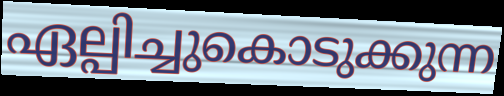
ഏല്പിച്ചുകൊടുക്കുന്ന